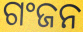
ଗଂଜନ